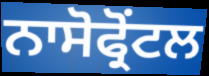
ਨਾਸੋਫ੍ਰੋਂਟਲ